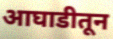
आघाडीतून